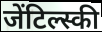
जेंटिल्स्की